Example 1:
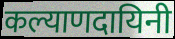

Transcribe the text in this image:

कल्याणदायिनी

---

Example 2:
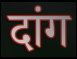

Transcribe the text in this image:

दांग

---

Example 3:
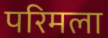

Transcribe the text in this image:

परिमला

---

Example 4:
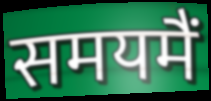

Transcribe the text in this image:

समयमैं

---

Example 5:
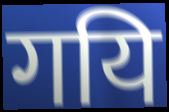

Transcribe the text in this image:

गयि